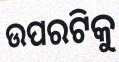
ଉପରଟିକୁ